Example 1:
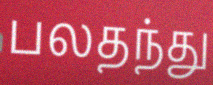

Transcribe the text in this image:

பலதந்து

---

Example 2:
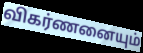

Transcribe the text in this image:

விகர்ணனையும்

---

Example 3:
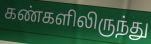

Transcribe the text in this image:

கண்களிலிருந்து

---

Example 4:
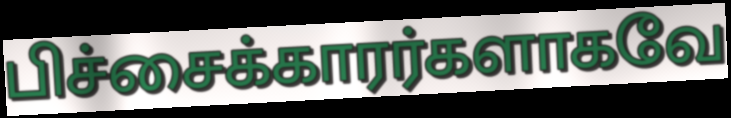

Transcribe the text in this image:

பிச்சைக்காரர்களாகவே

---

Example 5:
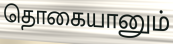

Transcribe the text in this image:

தொகையானும்